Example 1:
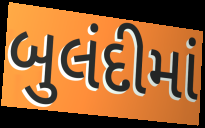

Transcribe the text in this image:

બુલંદીમાં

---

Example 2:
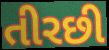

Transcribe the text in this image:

તીરછી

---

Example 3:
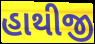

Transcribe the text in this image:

હાથીજી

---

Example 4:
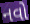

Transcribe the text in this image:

નવો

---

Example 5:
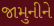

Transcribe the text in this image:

જામુનીને